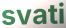
svati